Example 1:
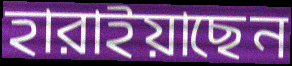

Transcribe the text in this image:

হারাইয়াছেন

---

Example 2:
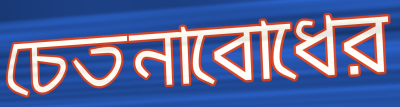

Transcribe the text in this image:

চেতনাবোধের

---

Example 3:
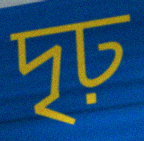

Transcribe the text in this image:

দৃঢ়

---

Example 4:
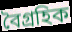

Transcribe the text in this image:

বৈগ্রহিক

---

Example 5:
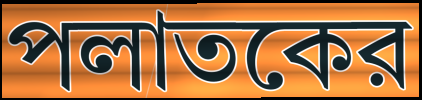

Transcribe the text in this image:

পলাতকের